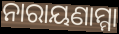
ନାରାୟଣାମ୍ମା